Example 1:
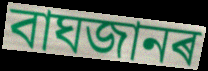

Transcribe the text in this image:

বাঘজানৰ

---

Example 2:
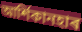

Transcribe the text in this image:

আৰ্শিকানহাৰ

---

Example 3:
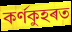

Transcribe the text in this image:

কৰ্ণকুহৰত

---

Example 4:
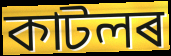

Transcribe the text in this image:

কাটলৰ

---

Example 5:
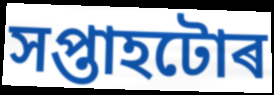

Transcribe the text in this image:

সপ্তাহটোৰ